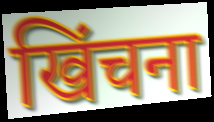
खिंचना